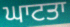
ਘਾਟਤਾ